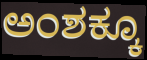
ಅಂಶಕ್ಕೂ